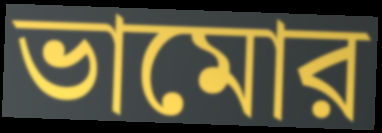
ভামোর